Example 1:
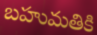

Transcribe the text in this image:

బహుమతికి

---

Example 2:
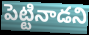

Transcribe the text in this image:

పెట్టినాడని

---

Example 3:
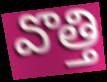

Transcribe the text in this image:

వొత్తి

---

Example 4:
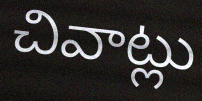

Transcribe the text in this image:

చివాట్లు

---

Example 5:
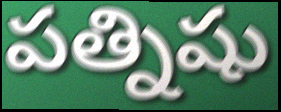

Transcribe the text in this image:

పత్నిషు